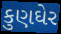
કુણઘેર